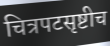
चित्रपटसृष्टीच